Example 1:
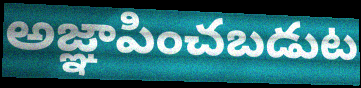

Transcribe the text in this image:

అజ్ఞాపించబడుట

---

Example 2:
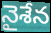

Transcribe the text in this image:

నైశేన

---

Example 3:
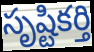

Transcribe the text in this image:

సృష్టికర్తి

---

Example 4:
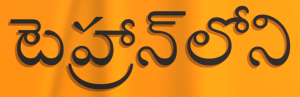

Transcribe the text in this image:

టెహ్రాన్‌లోని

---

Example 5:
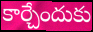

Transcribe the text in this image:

కార్చేందుకు